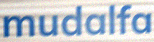
mudalfa